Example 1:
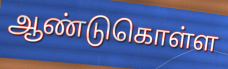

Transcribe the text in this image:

ஆண்டுகொள்ள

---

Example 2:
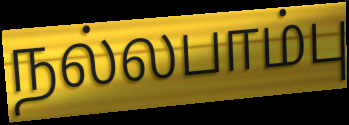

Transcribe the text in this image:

நல்லபாம்பு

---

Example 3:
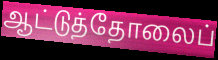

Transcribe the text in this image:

ஆட்டுத்தோலைப்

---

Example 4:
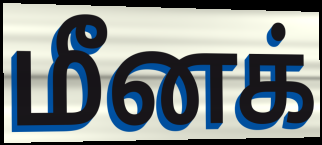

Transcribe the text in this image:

மீனக்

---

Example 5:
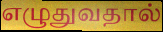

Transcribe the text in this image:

எழுதுவதால்